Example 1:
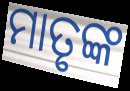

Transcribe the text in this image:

ମାତୃଙ୍କ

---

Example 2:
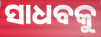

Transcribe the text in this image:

ସାଧବକୁ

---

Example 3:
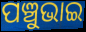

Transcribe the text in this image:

ପଞ୍ଚୁଭାଇ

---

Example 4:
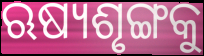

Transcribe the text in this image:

ଋଷ୍ୟଶୃଙ୍ଗକୁ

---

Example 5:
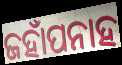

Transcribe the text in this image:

ଜହାଁପନାହ